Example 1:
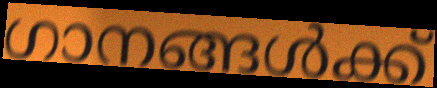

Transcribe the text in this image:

ഗാനങ്ങൾക്ക്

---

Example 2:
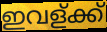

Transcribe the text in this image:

ഇവള്ക്ക്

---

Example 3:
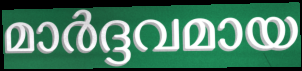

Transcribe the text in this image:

മാർദ്ദവമായ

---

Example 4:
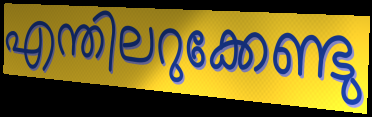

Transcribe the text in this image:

എന്തിലറുക്കേണ്ടു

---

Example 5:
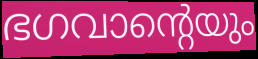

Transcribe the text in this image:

ഭഗവാന്റെയും